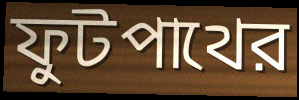
ফুটপাথের